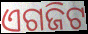
ଏଗଜିଟ